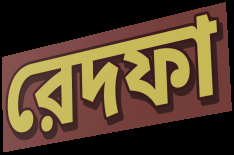
রেদফা